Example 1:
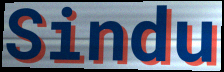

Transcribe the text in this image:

Sindu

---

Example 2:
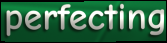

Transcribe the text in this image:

perfecting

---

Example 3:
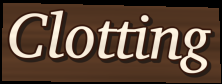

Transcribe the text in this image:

Clotting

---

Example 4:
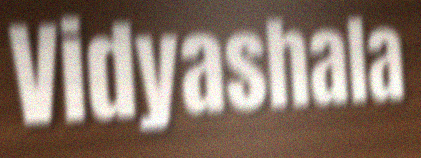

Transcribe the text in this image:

Vidyashala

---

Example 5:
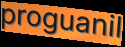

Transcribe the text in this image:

proguanil